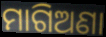
ମାଗିଅଣା